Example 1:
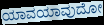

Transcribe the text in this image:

ಯಾವಯಾವುದೋ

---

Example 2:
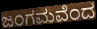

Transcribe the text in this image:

ಜಂಗಮವೆಂದ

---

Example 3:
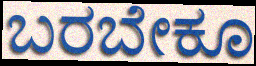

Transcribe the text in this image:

ಬರಬೇಕೂ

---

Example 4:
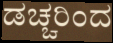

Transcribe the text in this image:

ಡಚ್ಚರಿಂದ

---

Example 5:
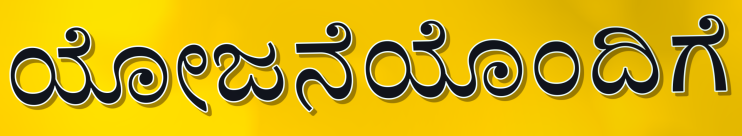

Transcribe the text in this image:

ಯೋಜನೆಯೊಂದಿಗೆ